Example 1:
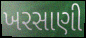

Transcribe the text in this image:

ખરસાણી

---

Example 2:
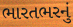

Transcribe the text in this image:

ભારતભરનું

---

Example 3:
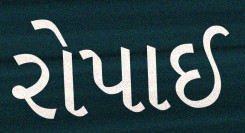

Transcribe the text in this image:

રોપાઈ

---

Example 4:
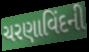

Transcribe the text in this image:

ચરણાવિંદની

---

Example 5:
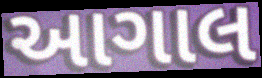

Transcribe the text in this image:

આગાલ